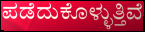
ಪಡೆದುಕೊಳ್ಳುತ್ತಿವೆ